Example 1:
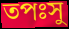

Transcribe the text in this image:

তপঃসু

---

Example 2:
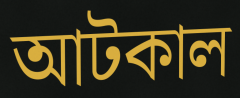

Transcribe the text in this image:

আটকাল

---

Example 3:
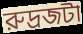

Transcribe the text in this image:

রুদ্রজটা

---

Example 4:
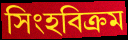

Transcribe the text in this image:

সিংহবিক্রম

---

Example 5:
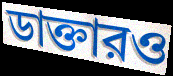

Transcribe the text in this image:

ডাক্তারও